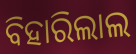
ବିହାରିଲାଲ